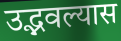
उद्भवल्यास